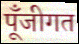
पूँजीगत